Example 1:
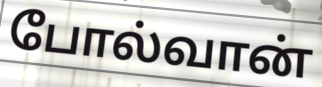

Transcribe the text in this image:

போல்வான்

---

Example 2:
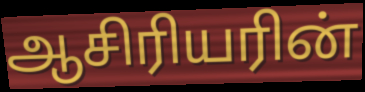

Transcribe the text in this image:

ஆசிரியரின்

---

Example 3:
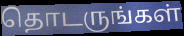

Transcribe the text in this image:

தொடருங்கள்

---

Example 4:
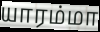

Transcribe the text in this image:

யாரம்மா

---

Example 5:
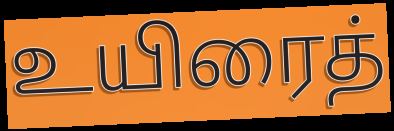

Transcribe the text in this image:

உயிரைத்